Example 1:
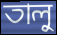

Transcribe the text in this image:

তালু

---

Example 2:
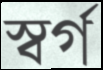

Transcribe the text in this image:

স্বৰ্গ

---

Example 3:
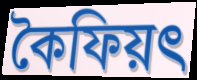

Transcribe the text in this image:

কৈফিয়ৎ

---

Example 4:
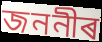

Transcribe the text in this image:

জননীৰ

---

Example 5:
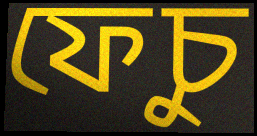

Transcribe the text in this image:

ফেচু